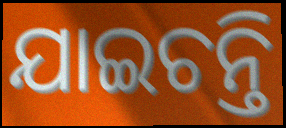
ଯାଇଚନ୍ତି